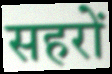
सहरों